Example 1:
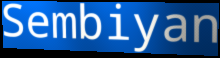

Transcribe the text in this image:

Sembiyan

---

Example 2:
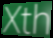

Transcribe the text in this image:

Xth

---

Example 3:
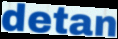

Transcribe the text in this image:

detan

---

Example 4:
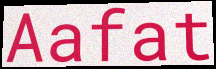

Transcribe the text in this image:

Aafat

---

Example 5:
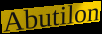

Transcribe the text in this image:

Abutilon